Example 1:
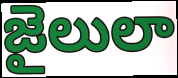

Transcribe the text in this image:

జైలులా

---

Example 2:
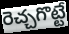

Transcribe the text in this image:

రెచ్చగొట్టే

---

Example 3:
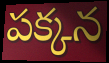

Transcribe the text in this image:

పక్కన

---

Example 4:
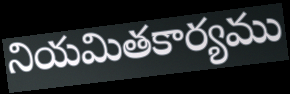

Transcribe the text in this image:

నియమితకార్యము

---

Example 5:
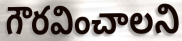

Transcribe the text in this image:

గౌరవించాలని